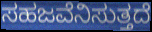
ಸಹಜವೆನಿಸುತ್ತದೆ